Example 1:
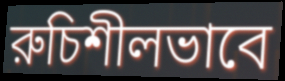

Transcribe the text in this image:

রুচিশীলভাবে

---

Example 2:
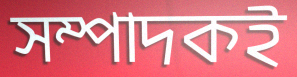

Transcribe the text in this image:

সম্পাদকই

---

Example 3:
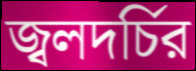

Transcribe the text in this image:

জ্বলদর্চির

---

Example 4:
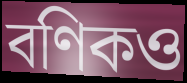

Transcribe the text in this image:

বণিকও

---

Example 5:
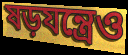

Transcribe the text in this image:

ষড়যন্ত্রেও